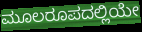
ಮೂಲರೂಪದಲ್ಲಿಯೇ